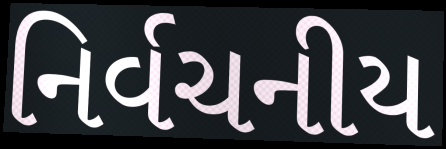
નિર્વચનીય